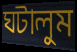
ঘটালুম